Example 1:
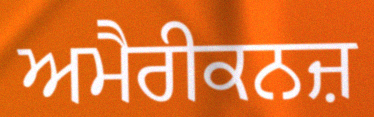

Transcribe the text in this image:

ਅਮੈਰੀਕਨਜ਼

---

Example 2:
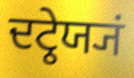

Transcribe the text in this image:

ਦਟ੍ਠੇਯ੍ਯਂ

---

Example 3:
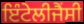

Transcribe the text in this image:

ਇੰਟੇਲੀਜੈਂਸੀ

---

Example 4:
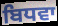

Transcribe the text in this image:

ਬਿਧਵਾ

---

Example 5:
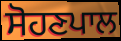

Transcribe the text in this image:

ਸੋਹਣਪਾਲ